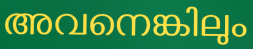
അവനെങ്കിലും